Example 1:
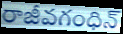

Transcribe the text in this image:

రాజీవగంధిన్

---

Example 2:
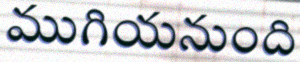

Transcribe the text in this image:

ముగియనుంది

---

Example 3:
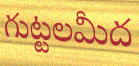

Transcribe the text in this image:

గుట్టలమీద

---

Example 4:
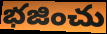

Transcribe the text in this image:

భజించు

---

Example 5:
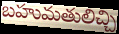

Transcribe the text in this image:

బహుమతులిచ్చి